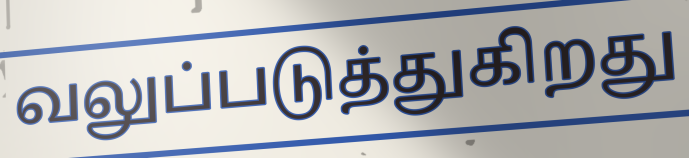
வலுப்படுத்துகிறது